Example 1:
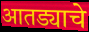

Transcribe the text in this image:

आतड्याचे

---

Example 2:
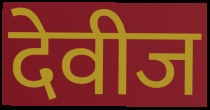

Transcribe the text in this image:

देवीज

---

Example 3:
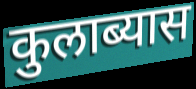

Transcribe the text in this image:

कुलाब्यास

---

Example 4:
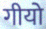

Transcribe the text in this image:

गीयो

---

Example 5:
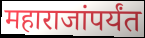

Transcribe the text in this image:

महाराजांपर्यंत